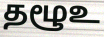
தழூஉ